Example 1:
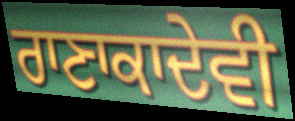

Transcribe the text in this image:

ਰਾਣਾਕਾਦੇਵੀ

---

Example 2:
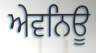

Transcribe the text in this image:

ਅੇਵਨਿਊ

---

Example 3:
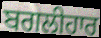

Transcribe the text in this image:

ਬਗਲੀਹਾਰ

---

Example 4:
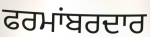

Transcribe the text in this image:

ਫਰਮਾਂਬਰਦਾਰ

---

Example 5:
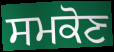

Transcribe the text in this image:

ਸਮਕੋਣ